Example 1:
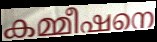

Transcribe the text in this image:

കമ്മീഷനെ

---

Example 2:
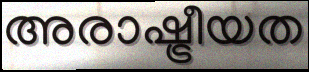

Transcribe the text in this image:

അരാഷ്ട്രീയത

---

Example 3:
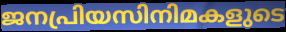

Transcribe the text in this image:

ജനപ്രിയസിനിമകളുടെ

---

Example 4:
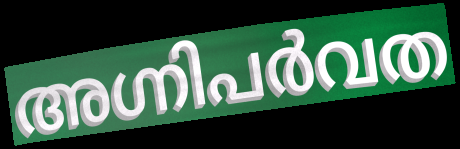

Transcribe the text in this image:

അഗ്നിപർവത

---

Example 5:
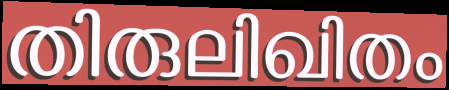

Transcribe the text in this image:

തിരുലിഖിതം